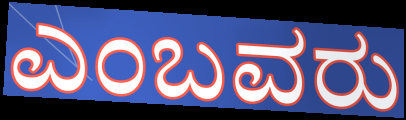
ಎಂಬವರು